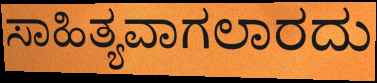
ಸಾಹಿತ್ಯವಾಗಲಾರದು